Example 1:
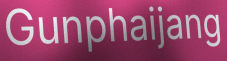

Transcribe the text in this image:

Gunphaijang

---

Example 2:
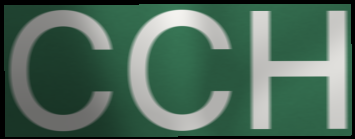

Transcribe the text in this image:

CCH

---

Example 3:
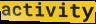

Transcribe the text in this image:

activity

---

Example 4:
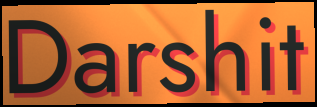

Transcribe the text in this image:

Darshit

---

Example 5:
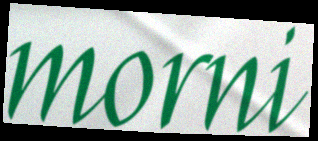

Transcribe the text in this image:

morni